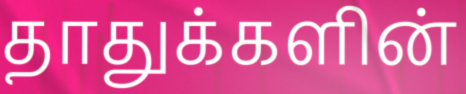
தாதுக்களின்